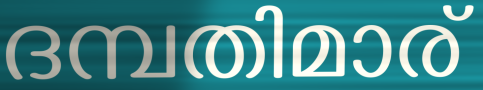
ദമ്പതിമാര്